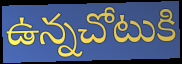
ఉన్నచోటుకి